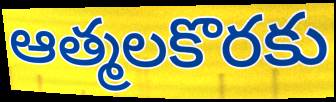
ఆత్మలకొరకు